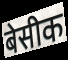
बेसीक